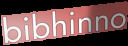
bibhinno